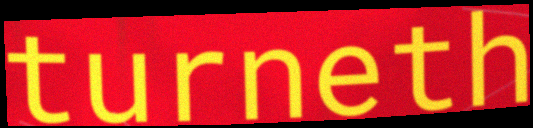
turneth